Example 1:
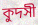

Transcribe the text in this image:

কুদসী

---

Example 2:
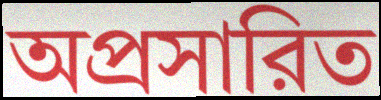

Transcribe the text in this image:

অপ্রসারিত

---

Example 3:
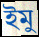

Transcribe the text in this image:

ইমু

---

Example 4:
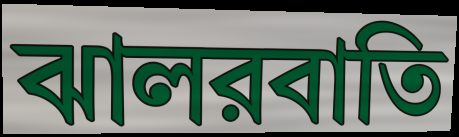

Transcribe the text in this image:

ঝালরবাতি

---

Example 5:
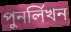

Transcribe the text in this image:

পুনর্লিখন